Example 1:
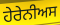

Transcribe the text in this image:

ਹੇਰੇਨੀਅਸ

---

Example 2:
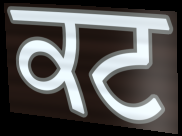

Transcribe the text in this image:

ਕਟ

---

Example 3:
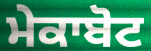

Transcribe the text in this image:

ਮੇਕਾਬੋਟ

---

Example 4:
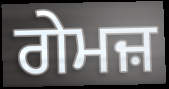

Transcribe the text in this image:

ਗੇਮਜ਼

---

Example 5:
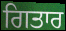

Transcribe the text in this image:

ਗਿਤਾਰ